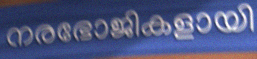
നരഭോജികളായി